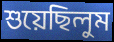
শুয়েছিলুম